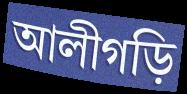
আলীগড়ি